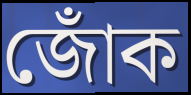
জোঁক